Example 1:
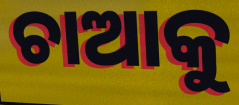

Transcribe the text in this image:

ଚାଆକୁ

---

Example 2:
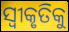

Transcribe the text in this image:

ସ୍ବୀକୃତିକୁ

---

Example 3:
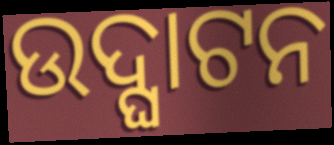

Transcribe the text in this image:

ଉଦ୍ଘାଟନ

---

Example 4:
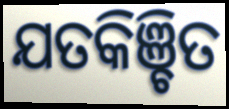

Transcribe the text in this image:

ଯତକିଞ୍ଚିତ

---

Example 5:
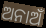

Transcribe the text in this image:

ଅନାଅଁ